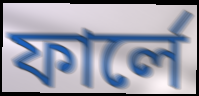
ফার্লে